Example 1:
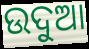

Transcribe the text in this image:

ଉଦୁଆ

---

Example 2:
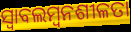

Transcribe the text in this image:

ସ୍ୱାବଲମ୍ବନଶୀଳତା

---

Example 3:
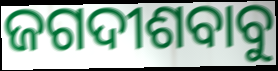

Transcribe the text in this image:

ଜଗଦୀଶବାବୁ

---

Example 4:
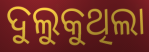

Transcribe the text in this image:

ଦୁଲୁକୁଥିଲା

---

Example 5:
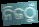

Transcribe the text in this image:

ନିଜଠୁଁ